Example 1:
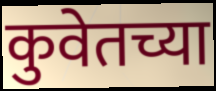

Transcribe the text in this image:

कुवेतच्या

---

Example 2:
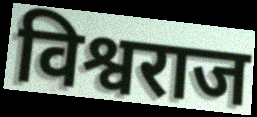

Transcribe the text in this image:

विश्वराज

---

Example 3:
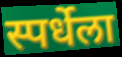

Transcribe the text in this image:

स्पर्धेला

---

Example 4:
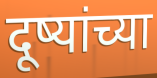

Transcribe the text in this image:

दूष्यांच्या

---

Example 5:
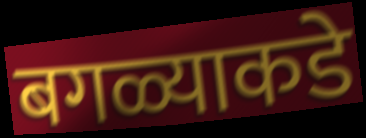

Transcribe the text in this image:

बगळ्याकडे